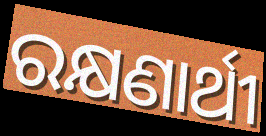
ରକ୍ଷଣାର୍ଥୀ